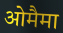
ओमैमा